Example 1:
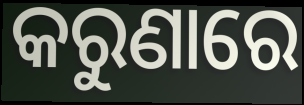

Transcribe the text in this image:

କରୁଣାରେ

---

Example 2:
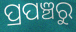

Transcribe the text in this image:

ପ୍ରପଞ୍ଚରୁ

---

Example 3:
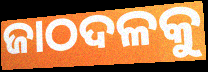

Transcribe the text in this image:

ଜାଠଦଳକୁ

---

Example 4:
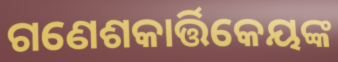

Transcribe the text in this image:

ଗଣେଶକାର୍ତ୍ତିକେୟଙ୍କ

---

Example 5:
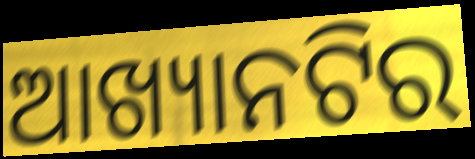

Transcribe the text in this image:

ଆଖ୍ୟାନଟିର